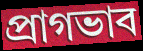
প্রাগভাব